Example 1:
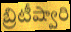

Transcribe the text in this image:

బ్రిటీష్వారి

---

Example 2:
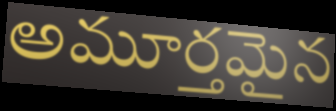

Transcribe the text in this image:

అమూర్తమైన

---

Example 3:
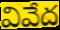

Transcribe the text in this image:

వివేద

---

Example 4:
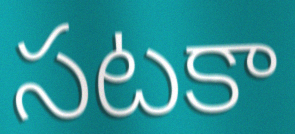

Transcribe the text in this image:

సటకా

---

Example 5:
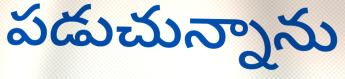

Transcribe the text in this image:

పడుచున్నాను